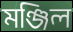
মঞ্জিল